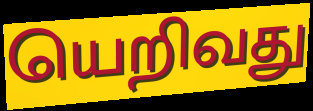
யெறிவது